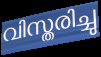
വിസ്തരിച്ചു